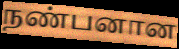
நண்பனான